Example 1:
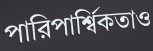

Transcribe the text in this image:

পারিপার্শ্বিকতাও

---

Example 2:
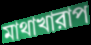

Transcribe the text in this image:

মাথাখারাপ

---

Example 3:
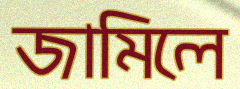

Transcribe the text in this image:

জামিলে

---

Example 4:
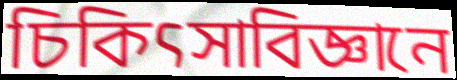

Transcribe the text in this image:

চিকিৎসাবিজ্ঞানে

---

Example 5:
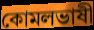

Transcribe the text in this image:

কোমলভাষী